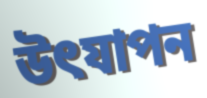
উৎযাপন